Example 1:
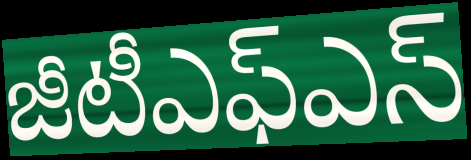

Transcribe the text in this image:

జీటీఎఫ్ఎస్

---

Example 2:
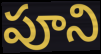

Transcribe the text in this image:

పూని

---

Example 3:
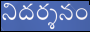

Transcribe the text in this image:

నిదర్శనం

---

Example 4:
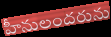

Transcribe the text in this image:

హీనులందరును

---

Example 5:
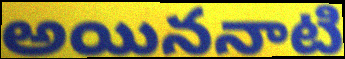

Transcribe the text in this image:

అయిననాటి